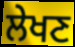
ਲੇਖਣ